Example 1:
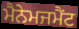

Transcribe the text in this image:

ਮੈਨੇਮਜਮੈਂਟ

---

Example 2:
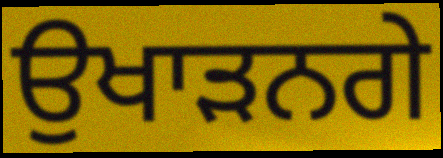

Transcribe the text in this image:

ਉਖਾੜਨਗੇ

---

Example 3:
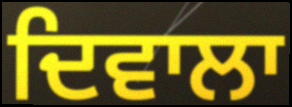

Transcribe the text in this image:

ਦਿਵਾਲਾ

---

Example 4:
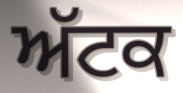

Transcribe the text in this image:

ਅੱਟਕ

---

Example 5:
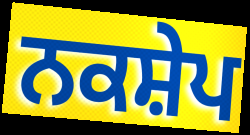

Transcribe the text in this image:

ਨਕਸ਼ੇਪ